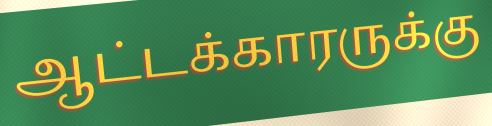
ஆட்டக்காரருக்கு